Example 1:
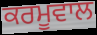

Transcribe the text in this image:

ਕਰਮੂਵਾਲ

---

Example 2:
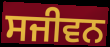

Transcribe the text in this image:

ਸਜੀਵਨ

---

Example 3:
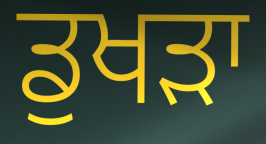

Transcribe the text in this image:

ਡੁਖੜਾ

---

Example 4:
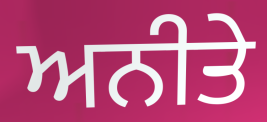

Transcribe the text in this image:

ਅਨੀਤੇ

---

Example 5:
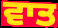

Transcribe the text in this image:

ਵਾਤ